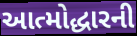
આત્મોદ્ધારની